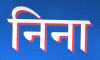
निना